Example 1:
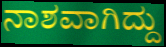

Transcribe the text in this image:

ನಾಶವಾಗಿದ್ದು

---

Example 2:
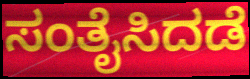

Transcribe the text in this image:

ಸಂತೈಸಿದಡೆ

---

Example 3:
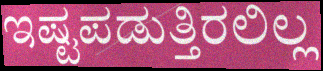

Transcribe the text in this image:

ಇಷ್ಟಪಡುತ್ತಿರಲಿಲ್ಲ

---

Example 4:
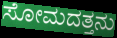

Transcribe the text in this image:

ಸೋಮದತ್ತನು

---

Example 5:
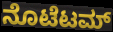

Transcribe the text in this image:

ನೊಟೆಟಮ್